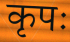
कृपः